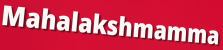
Mahalakshmamma